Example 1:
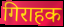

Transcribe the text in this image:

गिराहक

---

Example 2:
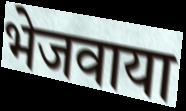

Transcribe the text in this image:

भेजवाया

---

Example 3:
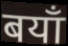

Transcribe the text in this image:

बयाँ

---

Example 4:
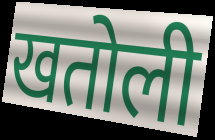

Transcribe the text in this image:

खतोली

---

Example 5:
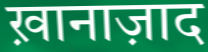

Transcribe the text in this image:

ख़ानाज़ाद